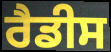
ਰੈਡੀਸ